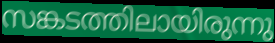
സങ്കടത്തിലായിരുന്നു